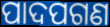
ପାଦପଗଣ